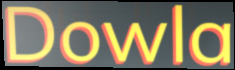
Dowla